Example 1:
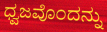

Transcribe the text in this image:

ಧ್ವಜವೊಂದನ್ನು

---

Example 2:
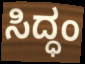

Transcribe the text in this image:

ಸಿದ್ಧಂ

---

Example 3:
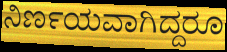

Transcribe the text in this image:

ನಿರ್ಣಯವಾಗಿದ್ದರೂ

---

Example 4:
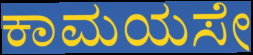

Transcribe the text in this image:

ಕಾಮಯಸೇ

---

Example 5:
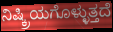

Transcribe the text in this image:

ನಿಷ್ಕ್ರಿಯಗೊಳ್ಳುತ್ತದೆ